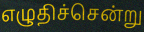
எழுதிச்சென்று